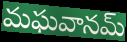
మఘవానమ్